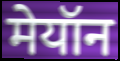
मेयॉन